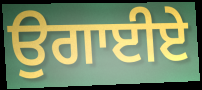
ਉਗਾਈਏ